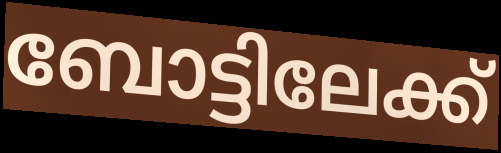
ബോട്ടിലേക്ക്